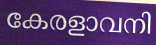
കേരളാവനി